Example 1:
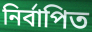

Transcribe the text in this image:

নিৰ্বাপিত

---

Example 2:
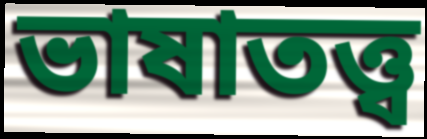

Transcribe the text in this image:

ভাষাতত্ত্ব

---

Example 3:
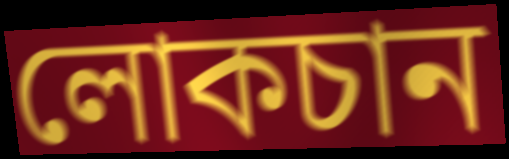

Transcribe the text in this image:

লোকচান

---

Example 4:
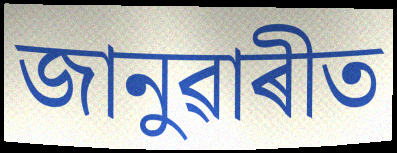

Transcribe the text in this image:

জানুৱাৰীত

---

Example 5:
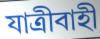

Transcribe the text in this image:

যাত্ৰীবাহী